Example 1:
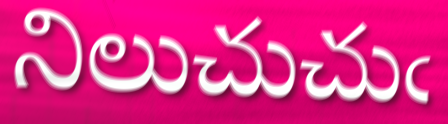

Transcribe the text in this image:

నిలుచుచుఁ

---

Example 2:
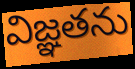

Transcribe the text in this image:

విజ్ఞతను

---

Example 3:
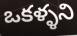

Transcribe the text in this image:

ఒకళ్ళని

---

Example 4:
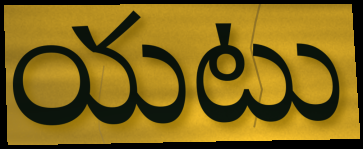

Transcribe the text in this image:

యటు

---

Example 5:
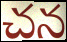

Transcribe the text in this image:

చన